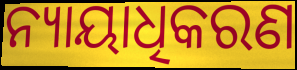
ନ୍ୟାୟାଧିକରଣ